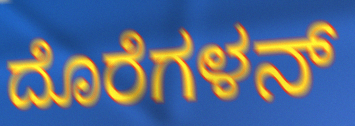
ದೊರೆಗಳನ್